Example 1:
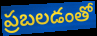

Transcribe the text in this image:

ప్రబలడంతో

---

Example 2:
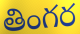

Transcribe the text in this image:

తింగర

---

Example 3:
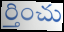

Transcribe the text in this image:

ర్తించు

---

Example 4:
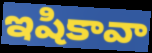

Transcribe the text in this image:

ఇషికావా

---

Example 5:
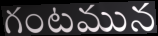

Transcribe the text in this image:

గంటమున